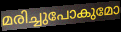
മരിച്ചുപോകുമോ